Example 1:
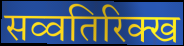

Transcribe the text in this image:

सव्वतिरिक्ख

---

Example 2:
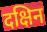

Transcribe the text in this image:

दक्षिन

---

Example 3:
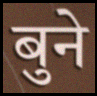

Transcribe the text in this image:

बुने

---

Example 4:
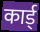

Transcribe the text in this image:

कार्ड्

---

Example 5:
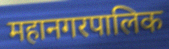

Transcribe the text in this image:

महानगरपालिक